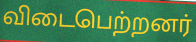
விடைபெற்றனர்